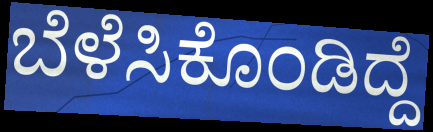
ಬೆಳೆಸಿಕೊಂಡಿದ್ದೆ